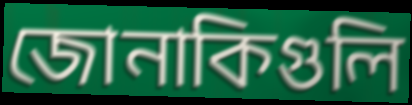
জোনাকিগুলি